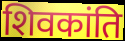
शिवकांति